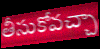
తీసుకోవచ్చా